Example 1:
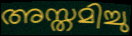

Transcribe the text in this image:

അസ്തമിച്ചു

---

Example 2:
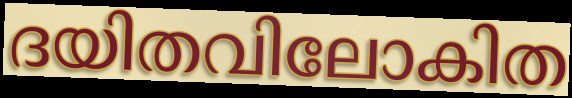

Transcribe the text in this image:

ദയിതവിലോകിത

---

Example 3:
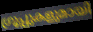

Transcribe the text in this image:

ഗ്രൂപ്പുകളുമായി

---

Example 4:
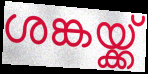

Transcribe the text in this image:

ശങ്കയ്ക്ക്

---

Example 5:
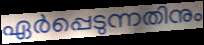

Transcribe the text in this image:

ഏർപ്പെടുന്നതിനും